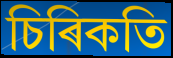
চিৰিকতি